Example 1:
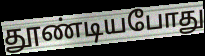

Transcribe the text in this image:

தூண்டியபோது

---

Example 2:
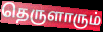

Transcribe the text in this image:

தெருளாரும்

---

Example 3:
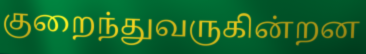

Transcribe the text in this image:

குறைந்துவருகின்றன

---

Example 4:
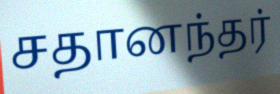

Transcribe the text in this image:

சதானந்தர்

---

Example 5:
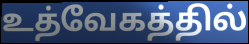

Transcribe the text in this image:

உத்வேகத்தில்